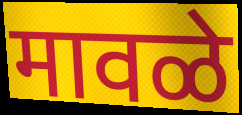
मावळे